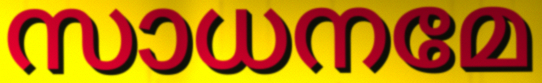
സാധനമേ